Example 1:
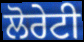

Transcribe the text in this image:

ਲੋਰੇਟੀ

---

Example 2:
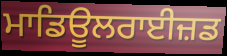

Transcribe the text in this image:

ਮਾਡਿਊਲਰਾਈਜ਼ਡ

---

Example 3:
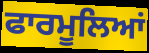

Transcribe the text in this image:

ਫਾਰਮੂਲਿਆਂ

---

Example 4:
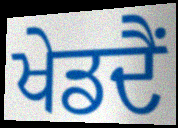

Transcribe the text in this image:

ਖੇਡਦੈਂ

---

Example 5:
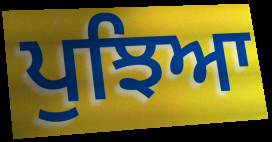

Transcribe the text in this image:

ਪੁਝਿਆ